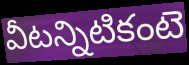
వీటన్నిటికంటె